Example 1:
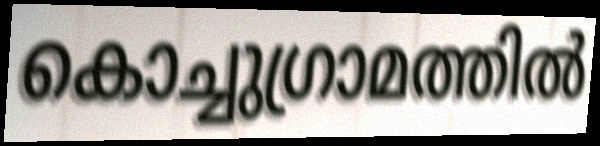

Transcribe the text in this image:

കൊച്ചുഗ്രാമത്തിൽ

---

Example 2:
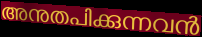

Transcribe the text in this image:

അനുതപിക്കുന്നവൻ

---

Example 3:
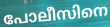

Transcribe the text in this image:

പോലീസിനെ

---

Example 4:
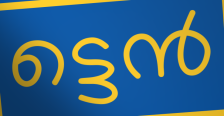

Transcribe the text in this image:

ട്ടെൻ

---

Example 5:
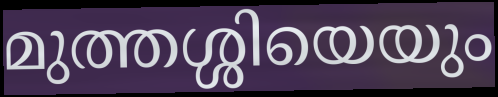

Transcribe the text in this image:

മുത്തശ്ശിയെയും